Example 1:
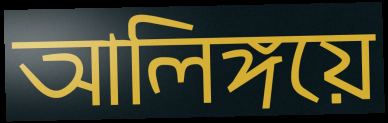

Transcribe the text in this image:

আলিঙ্গয়ে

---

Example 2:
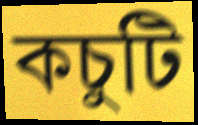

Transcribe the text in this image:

কচুটি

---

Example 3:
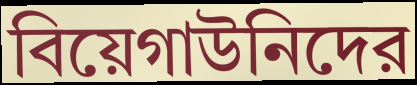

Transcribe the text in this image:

বিয়েগাউনিদের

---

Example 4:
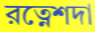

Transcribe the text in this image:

রত্নেশদা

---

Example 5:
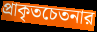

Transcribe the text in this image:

প্রাকৃতচেতনার